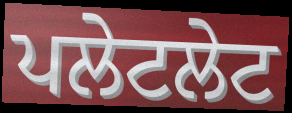
ਪਲੇਟਲੇਟ